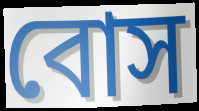
বোস